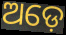
ଅଡ଼େ